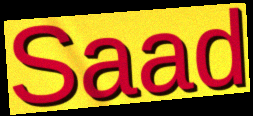
Saad